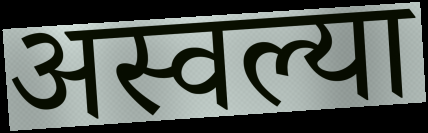
अस्वल्या